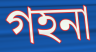
গহনা